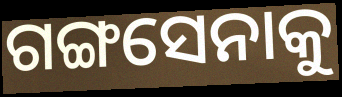
ଗଙ୍ଗସେନାକୁ